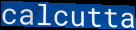
calcutta